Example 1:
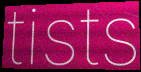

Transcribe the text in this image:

tists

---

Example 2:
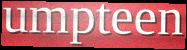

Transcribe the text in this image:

umpteen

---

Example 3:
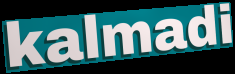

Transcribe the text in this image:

kalmadi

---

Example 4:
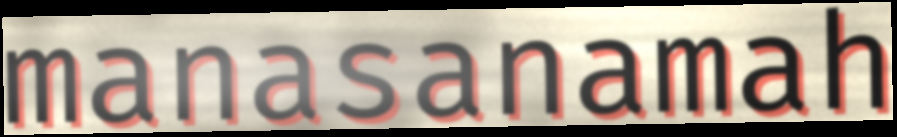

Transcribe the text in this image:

manasanamah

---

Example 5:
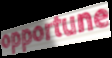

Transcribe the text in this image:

opportune